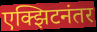
एक्झिटनंतर